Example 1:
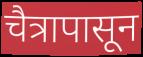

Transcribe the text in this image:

चैत्रापासून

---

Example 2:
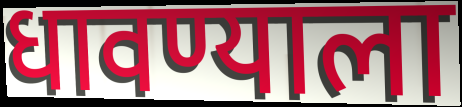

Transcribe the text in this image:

धावण्याला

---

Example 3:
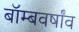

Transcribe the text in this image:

बॉम्बवर्षांव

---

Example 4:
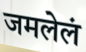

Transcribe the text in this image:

जमलेलं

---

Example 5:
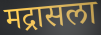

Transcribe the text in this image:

मद्रासला